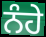
ਨੰਹੇ